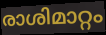
രാശിമാറ്റം